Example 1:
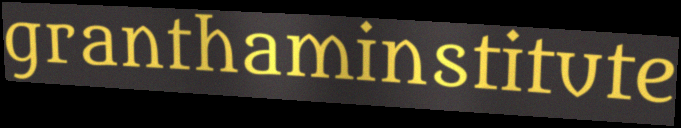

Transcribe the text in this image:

granthaminstitute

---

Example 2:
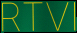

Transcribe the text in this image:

RTVI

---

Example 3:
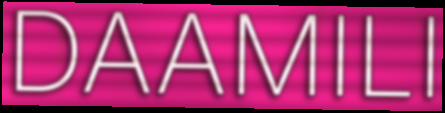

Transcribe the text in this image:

DAAMILI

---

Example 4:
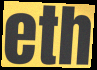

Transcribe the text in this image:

eth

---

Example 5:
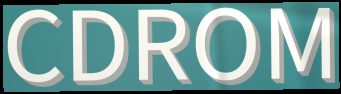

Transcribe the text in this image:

CDROM